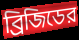
ব্রিজিডের